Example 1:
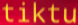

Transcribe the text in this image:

tiktu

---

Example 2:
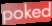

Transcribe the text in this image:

poked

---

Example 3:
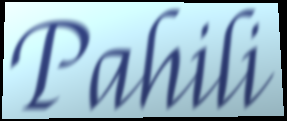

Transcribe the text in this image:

Pahili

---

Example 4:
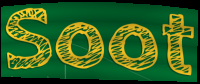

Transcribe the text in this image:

Soot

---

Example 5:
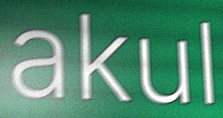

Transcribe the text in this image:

akul